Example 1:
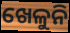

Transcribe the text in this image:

ଖେଳୁନି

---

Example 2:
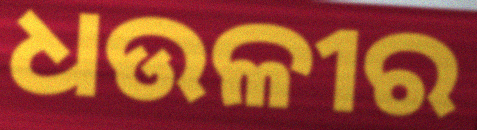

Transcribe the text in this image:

ଧଉଳୀର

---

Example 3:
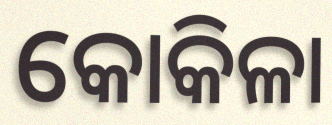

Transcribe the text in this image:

କୋକିଳା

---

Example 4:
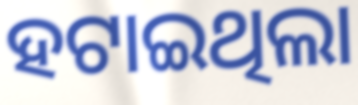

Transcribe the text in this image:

ହଟାଇଥିଲା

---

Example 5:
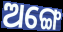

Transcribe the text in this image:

ଅଙ୍ଗେ